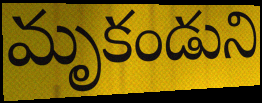
మృకండుని